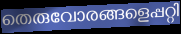
തെരുവോരങ്ങളെപ്പറ്റി